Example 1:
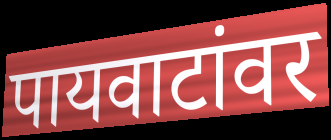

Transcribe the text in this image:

पायवाटांवर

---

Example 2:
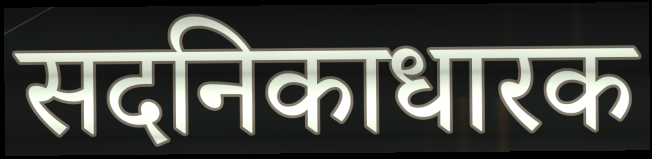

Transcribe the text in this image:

सदनिकाधारक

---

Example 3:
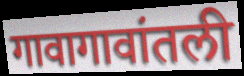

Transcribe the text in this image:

गावागावांतली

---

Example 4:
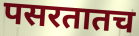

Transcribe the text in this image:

पसरतातच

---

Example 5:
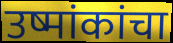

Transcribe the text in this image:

उष्मांकांचा